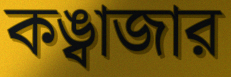
কঙ্বাজার